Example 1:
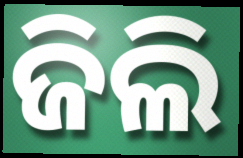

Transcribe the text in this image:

ଜିଲି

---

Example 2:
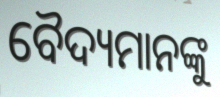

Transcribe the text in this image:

ବୈଦ୍ୟମାନଙ୍କୁ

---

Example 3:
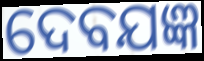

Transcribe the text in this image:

ଦେବଯଜ୍ଞ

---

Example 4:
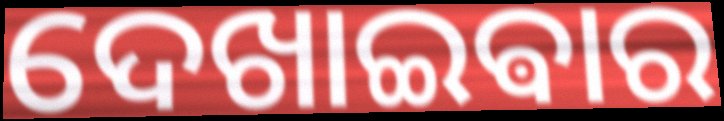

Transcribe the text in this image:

ଦେଖାଇଵାର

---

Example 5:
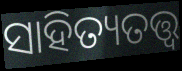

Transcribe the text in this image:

ସାହିତ୍ୟତତ୍ତ୍ୱ